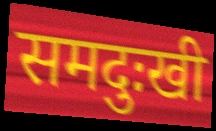
समदुःखी